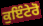
ਕੁਇੰਟੇਰੋ